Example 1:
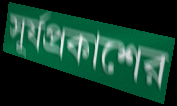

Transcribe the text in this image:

সূর্যপ্রকাশের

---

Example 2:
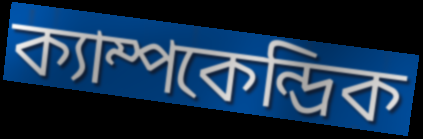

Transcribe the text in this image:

ক্যাম্পকেন্দ্রিক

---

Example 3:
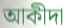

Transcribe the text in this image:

আকীদা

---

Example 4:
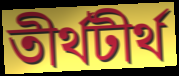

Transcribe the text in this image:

তীর্থটীর্থ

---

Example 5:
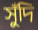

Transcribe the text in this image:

সুঁদি